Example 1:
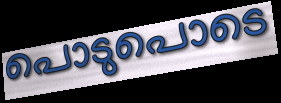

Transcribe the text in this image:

പൊടുപൊടെ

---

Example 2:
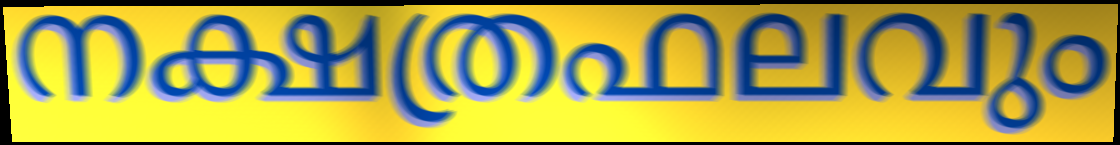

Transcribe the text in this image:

നക്ഷത്രഫലവും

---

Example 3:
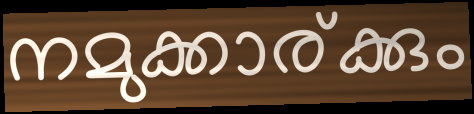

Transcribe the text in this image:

നമുക്കാര്ക്കും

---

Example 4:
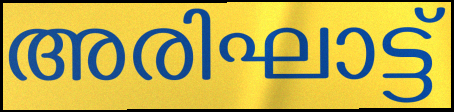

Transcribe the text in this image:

അരിഘാട്ട്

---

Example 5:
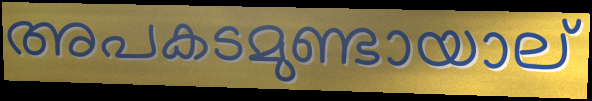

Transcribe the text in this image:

അപകടമുണ്ടായാല്